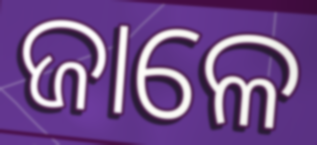
ଜାଳେ